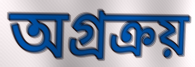
অগ্রক্রয়